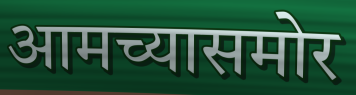
आमच्यासमोर